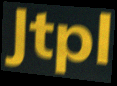
Jtpl